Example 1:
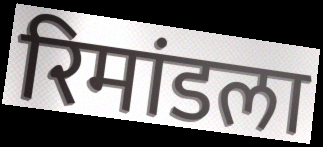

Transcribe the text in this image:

रिमांडला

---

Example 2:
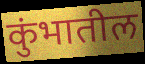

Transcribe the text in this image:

कुंभातील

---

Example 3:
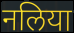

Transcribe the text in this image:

नलिया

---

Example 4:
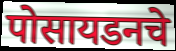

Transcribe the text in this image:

पोसायडनचे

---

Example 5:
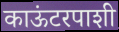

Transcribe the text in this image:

काऊंटरपाशी